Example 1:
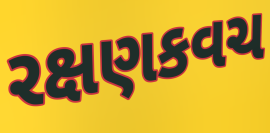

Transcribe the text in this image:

રક્ષણકવચ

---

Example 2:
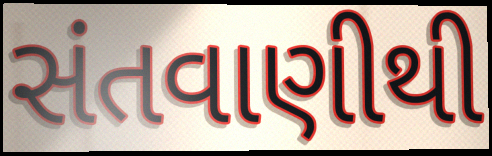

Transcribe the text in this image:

સંતવાણીથી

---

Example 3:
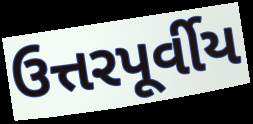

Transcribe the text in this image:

ઉત્તરપૂર્વીય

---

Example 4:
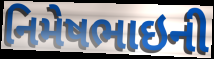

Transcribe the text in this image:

નિમેષભાઇની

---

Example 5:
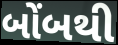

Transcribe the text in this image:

બોંબથી